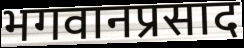
भगवानप्रसाद